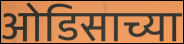
ओडिसाच्या